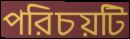
পরিচয়টি